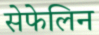
सेफेलिन